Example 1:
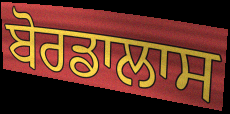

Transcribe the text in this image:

ਬੋਰਡਾਲਾਸ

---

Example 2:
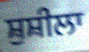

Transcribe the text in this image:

ਸ਼ੁਸ਼ੀਲਾ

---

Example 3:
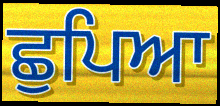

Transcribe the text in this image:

ਛੁਪਿਆ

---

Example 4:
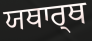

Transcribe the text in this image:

ਯਥਾਰ੍ਥ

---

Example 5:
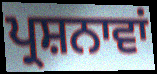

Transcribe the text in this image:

ਪ੍ਰਸ਼ਨਾਵਾਂ